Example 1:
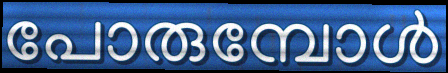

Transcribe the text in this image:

പോരുമ്പോൾ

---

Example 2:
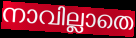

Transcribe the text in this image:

നാവില്ലാതെ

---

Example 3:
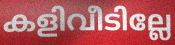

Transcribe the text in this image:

കളിവീടില്ലേ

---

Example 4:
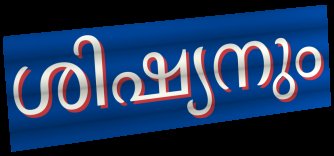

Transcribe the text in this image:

ശിഷ്യനും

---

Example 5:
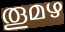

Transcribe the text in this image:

തൂമഴ